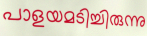
പാളയമടിച്ചിരുന്നു